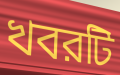
খবরটি